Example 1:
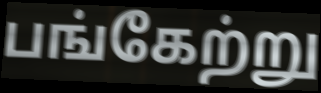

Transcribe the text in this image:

பங்கேற்று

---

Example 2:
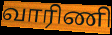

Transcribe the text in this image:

வாரிணி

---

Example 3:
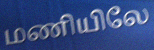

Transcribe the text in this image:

மணியிலே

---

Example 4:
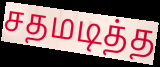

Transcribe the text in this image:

சதமடித்த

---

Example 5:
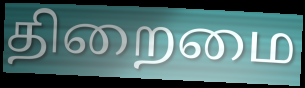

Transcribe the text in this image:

திறைமை